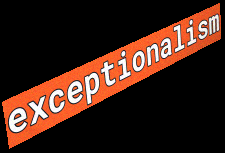
exceptionalism